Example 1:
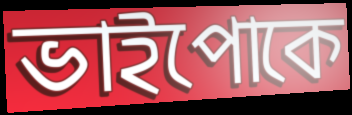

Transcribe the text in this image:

ভাইপোকে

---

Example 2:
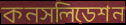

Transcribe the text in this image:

কনসলিডেশন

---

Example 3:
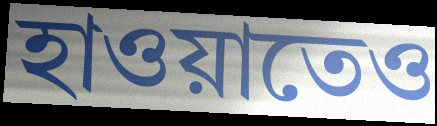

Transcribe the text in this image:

হাওয়াতেও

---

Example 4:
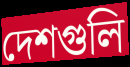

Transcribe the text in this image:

দেশগুলি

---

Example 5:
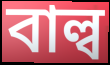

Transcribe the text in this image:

বাল্ব